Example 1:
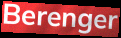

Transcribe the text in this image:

Berenger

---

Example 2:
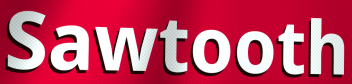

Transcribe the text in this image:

Sawtooth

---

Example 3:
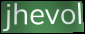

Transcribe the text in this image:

jhevol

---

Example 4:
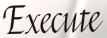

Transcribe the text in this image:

Execute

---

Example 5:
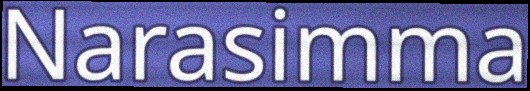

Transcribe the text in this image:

Narasimma